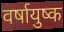
वर्षायुष्क